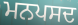
ਮਨਪਸਦ